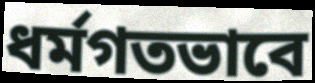
ধর্মগতভাবে